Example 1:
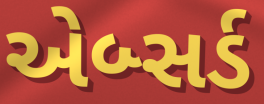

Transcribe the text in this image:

એબ્સર્ડ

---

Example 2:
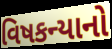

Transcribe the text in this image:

વિષકન્યાનો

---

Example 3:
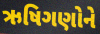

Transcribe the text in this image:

ઋષિગણોને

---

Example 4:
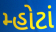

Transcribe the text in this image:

મ્હોટાં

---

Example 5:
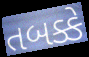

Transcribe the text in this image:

તબક્કે